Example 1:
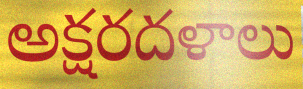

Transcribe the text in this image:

అక్షరదళాలు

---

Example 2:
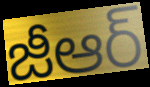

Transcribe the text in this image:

జీఆర్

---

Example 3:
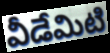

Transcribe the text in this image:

వీడేమిటి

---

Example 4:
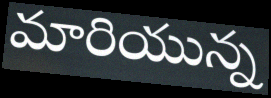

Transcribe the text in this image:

మారియున్న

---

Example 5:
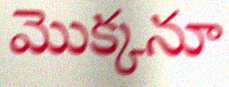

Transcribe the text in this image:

మొక్కనూ